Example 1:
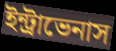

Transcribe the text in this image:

ইন্ট্রাভেনাস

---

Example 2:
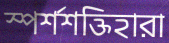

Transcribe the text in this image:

স্পর্শশক্তিহারা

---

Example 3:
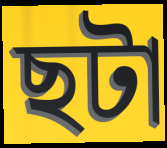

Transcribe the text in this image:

ছটা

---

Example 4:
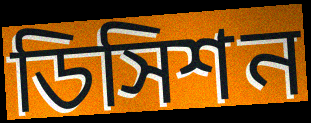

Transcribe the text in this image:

ডিসিশন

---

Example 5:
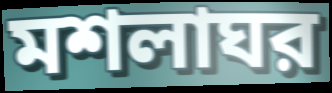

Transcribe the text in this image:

মশলাঘর